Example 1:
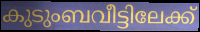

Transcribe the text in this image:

കുടുംബവീട്ടിലേക്ക്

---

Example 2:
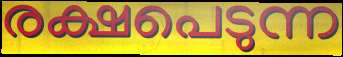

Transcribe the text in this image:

രക്ഷപെടുന്ന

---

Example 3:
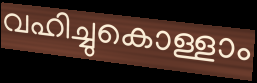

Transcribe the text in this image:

വഹിച്ചുകൊള്ളാം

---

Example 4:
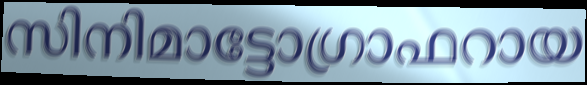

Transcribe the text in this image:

സിനിമാട്ടോഗ്രാഫറായ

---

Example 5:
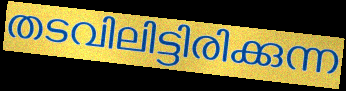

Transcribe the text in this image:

തടവിലിട്ടിരിക്കുന്ന